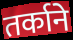
तर्काने